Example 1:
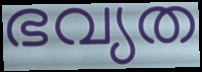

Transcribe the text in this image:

ഭവ്യത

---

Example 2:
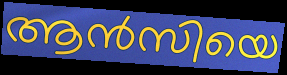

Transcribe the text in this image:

ആൻസിയെ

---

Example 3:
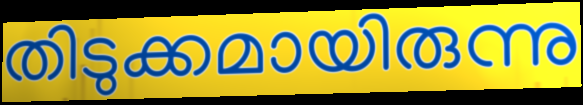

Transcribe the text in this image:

തിടുക്കമായിരുന്നു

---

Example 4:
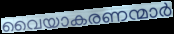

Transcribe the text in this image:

വൈയാകരണന്മാർ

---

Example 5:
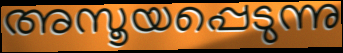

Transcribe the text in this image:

അസൂയപ്പെടുന്നു